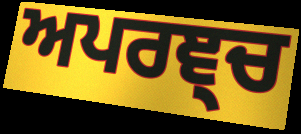
ਅਪਰਞ੍ਚ